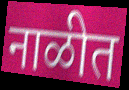
नाळीत